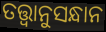
ତତ୍ତ୍ବାନୁସନ୍ଧାନ